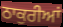
ਠਾਕੁਰੀਆਂ